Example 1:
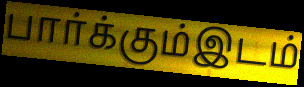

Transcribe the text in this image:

பார்க்கும்இடம்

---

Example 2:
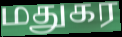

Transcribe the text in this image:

மதுகர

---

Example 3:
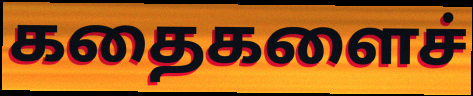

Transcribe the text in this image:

கதைகளைச்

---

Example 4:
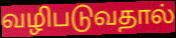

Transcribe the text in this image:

வழிபடுவதால்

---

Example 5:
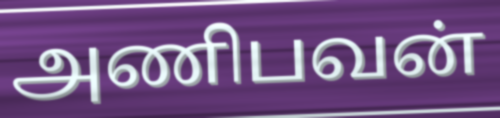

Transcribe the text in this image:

அணிபவன்